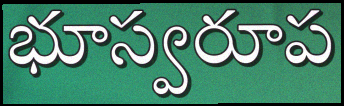
భూస్వరూప